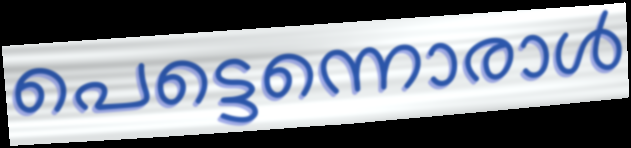
പെട്ടെന്നൊരാൾ